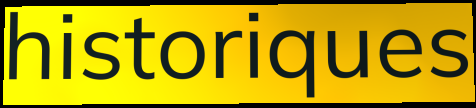
historiques